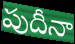
పుదీనా